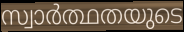
സ്വാർത്ഥതയുടെ